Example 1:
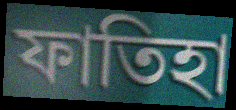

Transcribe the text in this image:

ফাতিহা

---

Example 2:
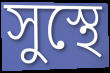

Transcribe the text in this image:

সুস্থে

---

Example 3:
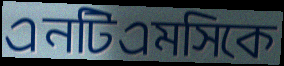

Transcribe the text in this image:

এনটিএমসিকে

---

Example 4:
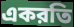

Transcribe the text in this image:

একরতি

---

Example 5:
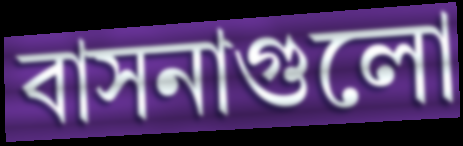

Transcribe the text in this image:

বাসনাগুলো